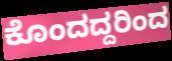
ಕೊಂದದ್ದರಿಂದ